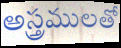
అస్త్రములతో